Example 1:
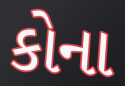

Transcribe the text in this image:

કોના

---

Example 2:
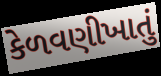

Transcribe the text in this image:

કેળવણીખાતું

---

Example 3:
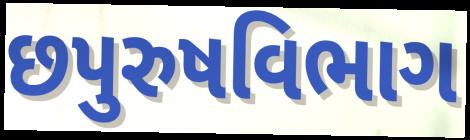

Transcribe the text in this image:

છપુરુષવિભાગ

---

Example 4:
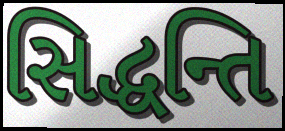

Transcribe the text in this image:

સિદ્ધન્તિ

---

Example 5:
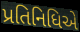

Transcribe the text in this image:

પ્રતિનિધિએ